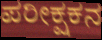
ಪರೀಕ್ಷಕನ